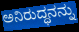
ಅನಿರುದ್ಧನನ್ನು